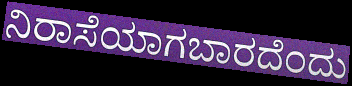
ನಿರಾಸೆಯಾಗಬಾರದೆಂದು